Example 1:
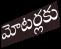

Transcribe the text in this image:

మోటర్లకు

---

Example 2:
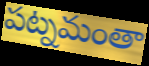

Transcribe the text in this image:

పట్నమంతా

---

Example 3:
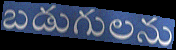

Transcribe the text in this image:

బడుగులను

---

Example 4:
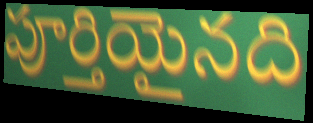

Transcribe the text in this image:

పూర్తియైనది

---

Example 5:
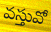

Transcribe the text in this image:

వస్తువో